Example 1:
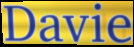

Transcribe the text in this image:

Davie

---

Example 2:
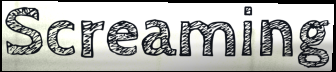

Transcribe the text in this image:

Screaming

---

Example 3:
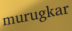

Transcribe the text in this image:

murugkar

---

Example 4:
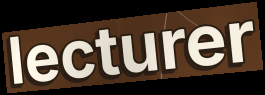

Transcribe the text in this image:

lecturer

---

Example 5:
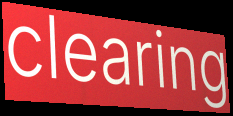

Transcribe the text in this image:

clearing